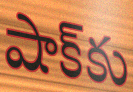
షాక్‌కు